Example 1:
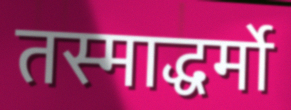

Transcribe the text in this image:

तस्माद्धर्मो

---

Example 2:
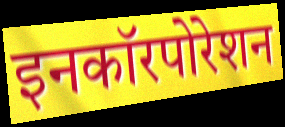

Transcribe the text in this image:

इनकॉरपोरेशन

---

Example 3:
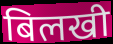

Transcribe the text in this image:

बिलखी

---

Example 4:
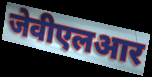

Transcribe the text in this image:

जेवीएलआर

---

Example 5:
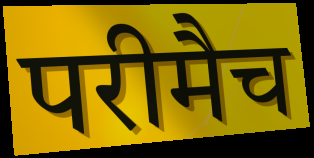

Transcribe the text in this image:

परीमैच